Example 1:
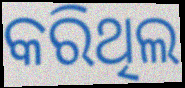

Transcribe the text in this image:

କରିଥିଲ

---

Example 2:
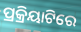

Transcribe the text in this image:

ପ୍ରକ୍ରିୟାଟିରେ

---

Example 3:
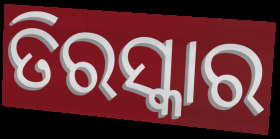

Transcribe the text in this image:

ତିରସ୍କାର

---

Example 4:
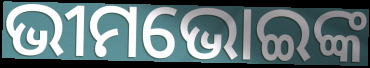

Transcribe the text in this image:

ଭୀମଭୋଇଙ୍କ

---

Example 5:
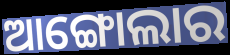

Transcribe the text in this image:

ଆଙ୍ଗୋଲାର